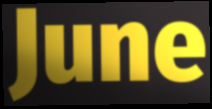
June